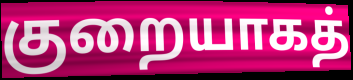
குறையாகத்